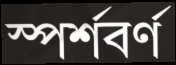
স্পৰ্শবৰ্ণ